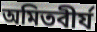
অমিতবীর্য